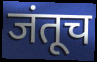
जंतूच